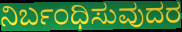
ನಿರ್ಬಂಧಿಸುವುದರ